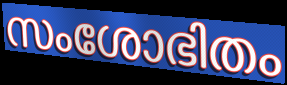
സംശോഭിതം